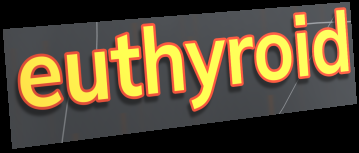
euthyroid